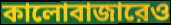
কালোবাজারেও